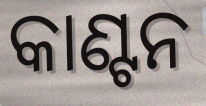
କାଣ୍ଟନ